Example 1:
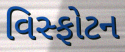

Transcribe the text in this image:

વિસ્ફોટન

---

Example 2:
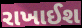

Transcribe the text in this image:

રાખાઈશ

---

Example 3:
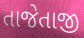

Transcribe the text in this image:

તાજેતાજી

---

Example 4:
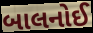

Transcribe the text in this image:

બાલનોઈ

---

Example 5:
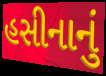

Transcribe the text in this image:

હસીનાનું